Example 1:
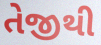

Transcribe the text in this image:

તેજીથી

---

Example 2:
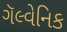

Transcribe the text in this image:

ગૅલ્વેનિક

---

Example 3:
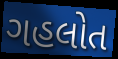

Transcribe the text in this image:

ગહલોત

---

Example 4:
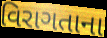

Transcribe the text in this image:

વિરાગતાના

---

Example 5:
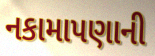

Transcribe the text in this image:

નકામાપણાની